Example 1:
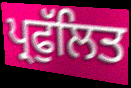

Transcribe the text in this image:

ਪ੍ਰਫੁੱਲਿਤ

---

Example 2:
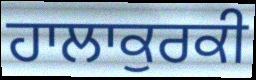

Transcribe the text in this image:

ਹਾਲਾਕੁਰਕੀ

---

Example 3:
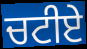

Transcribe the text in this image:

ਚਟੀਏ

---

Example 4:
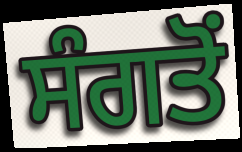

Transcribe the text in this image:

ਸੰਗਤੋਂ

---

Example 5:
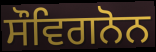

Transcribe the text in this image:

ਸੌਵਿਗਨੋਨ